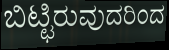
ಬಿಟ್ಟಿರುವುದರಿಂದ